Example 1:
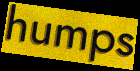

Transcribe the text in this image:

humps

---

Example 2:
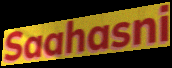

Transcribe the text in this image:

Saahasni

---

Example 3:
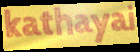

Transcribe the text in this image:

kathayai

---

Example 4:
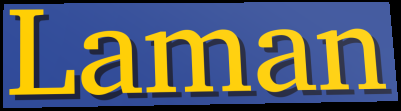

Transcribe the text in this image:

Laman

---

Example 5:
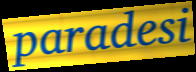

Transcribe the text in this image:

paradesi